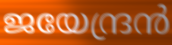
ജയേന്ദ്രൻ